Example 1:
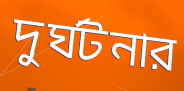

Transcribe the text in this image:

দুর্ঘটনার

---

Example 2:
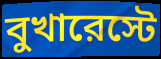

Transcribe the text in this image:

বুখারেস্টে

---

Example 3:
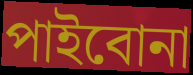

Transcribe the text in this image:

পাইবোনা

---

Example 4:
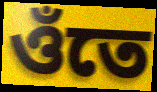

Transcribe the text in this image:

ওঁতে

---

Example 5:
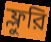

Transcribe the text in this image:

ফ্লুরি